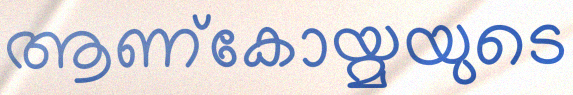
ആണ്കോയ്മയുടെ